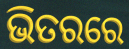
ଭିତରରେ